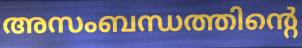
അസംബന്ധത്തിന്റെ